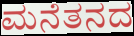
ಮನೆತನದ